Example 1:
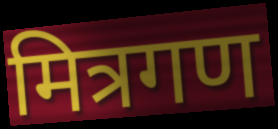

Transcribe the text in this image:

मित्रगण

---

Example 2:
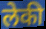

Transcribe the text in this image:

लेकी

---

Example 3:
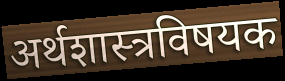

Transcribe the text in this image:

अर्थशास्त्रविषयक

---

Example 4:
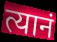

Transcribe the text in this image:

त्यानं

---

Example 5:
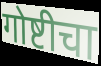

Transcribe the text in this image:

गोष्टीचा